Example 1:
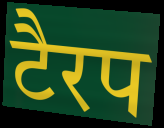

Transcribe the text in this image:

टैरप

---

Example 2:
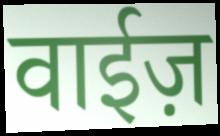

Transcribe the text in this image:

वाईज़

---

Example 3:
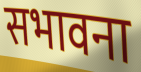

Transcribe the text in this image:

सभावना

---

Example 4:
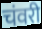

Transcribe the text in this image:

चंवरी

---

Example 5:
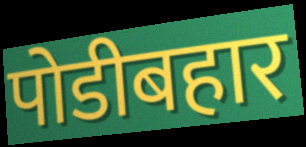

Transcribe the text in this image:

पोडीबहार